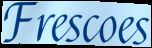
Frescoes